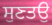
ਸੁਣਤਉ